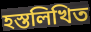
হস্তলিখিত